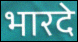
भारदे